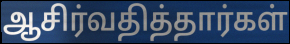
ஆசிர்வதித்தார்கள்